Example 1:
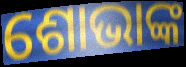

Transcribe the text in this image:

ଶୋଭାଙ୍କ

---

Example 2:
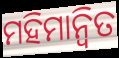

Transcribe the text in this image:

ମହିମାନ୍ଵିତ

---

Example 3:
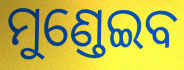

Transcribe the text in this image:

ମୁଣ୍ଡେଇବ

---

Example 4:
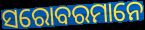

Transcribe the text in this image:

ସରୋବରମାନେ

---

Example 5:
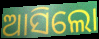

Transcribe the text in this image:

ଆସିଲୋ